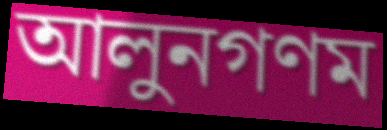
আলুনগণম